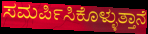
ಸಮರ್ಪಿಸಿಕೊಳ್ಳುತ್ತಾನೆ